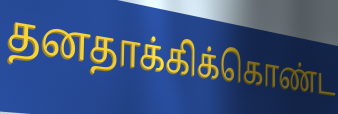
தனதாக்கிக்கொண்ட